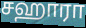
சஹாரா